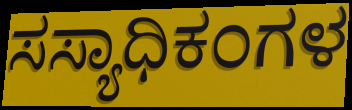
ಸಸ್ಯಾಧಿಕಂಗಳ